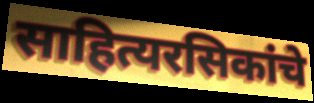
साहित्यरसिकांचे